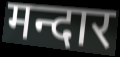
मन्दार